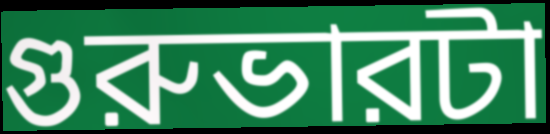
গুরুভারটা